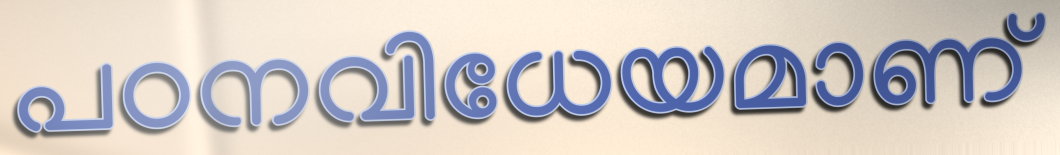
പഠനവിധേയമാണ്